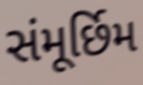
સંમૂર્છિમ